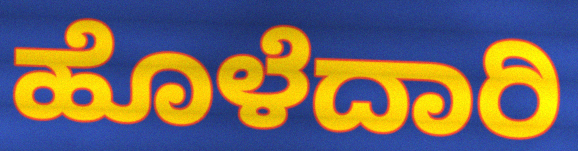
ಹೊಳೆದಾರಿ